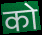
को